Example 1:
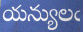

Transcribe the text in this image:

యన్యులఁ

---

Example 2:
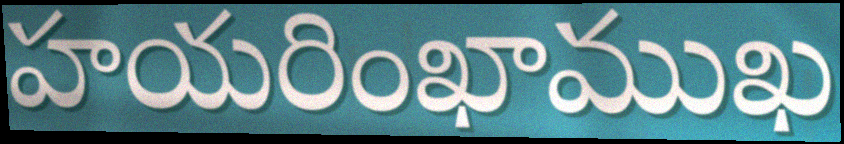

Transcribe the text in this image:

హయరింఖాముఖ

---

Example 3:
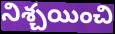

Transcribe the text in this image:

నిశ్చయించి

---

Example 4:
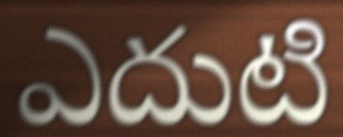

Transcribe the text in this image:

ఎదుటి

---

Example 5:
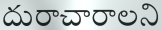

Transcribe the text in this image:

దురాచారాలని